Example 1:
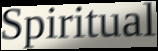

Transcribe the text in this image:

Spiritual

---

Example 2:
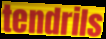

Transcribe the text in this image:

tendrils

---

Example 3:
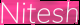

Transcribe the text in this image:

Nitesh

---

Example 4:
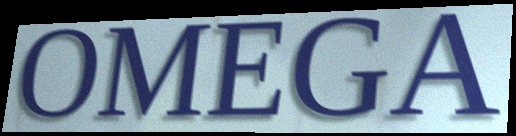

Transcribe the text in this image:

OMEGA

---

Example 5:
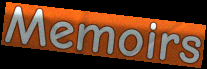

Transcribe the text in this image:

Memoirs